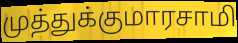
முத்துக்குமாரசாமி